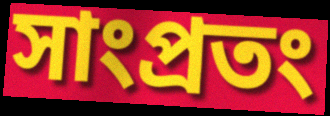
সাংপ্রতং